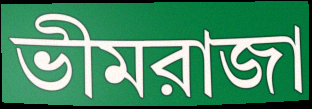
ভীমরাজা